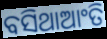
ବସିଥାଆଂତି